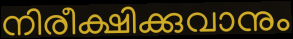
നിരീക്ഷിക്കുവാനും